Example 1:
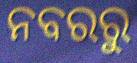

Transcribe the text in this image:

ନବରରୁ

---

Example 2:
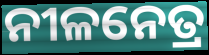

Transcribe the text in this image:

ନୀଳନେତ୍ର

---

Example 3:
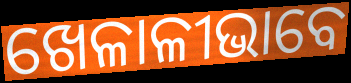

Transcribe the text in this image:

ଖେଳାଳୀଭାବେ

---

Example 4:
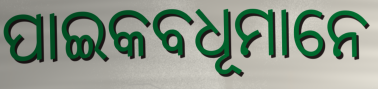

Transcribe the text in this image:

ପାଇକବଧୂମାନେ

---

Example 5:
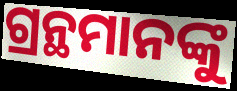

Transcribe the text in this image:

ଗ୍ରନ୍ଥମାନଙ୍କୁ